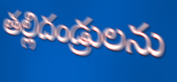
తల్లిదండ్రులను